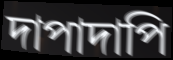
দাপাদাপি